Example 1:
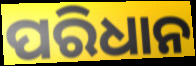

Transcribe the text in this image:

ପରିଧାନ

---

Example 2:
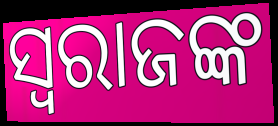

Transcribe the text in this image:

ସ୍ୱରାଜଙ୍କ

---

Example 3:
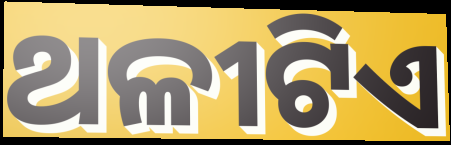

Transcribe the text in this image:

ଥଳୀଟିଏ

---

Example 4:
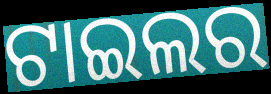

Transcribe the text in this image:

ଟାଇଲର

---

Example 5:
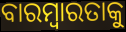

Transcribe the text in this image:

ବାରମ୍ବାରତାକୁ